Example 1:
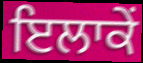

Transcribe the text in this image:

ਇਲਾਕੇਂ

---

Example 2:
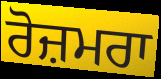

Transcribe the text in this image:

ਰੋਜ਼ਮਰਾ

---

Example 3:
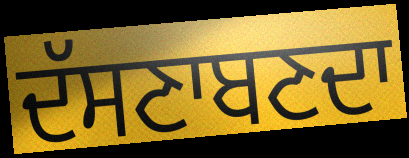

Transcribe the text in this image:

ਦੱਸਣਾਬਣਦਾ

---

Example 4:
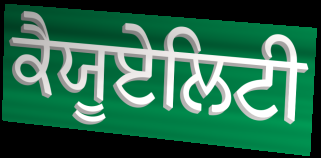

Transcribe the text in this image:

ਕੈਯੂਏਲਿਟੀ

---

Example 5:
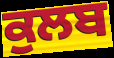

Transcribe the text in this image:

ਕੁਲਬ